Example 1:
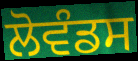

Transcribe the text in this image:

ਲੋਵੰਡਸ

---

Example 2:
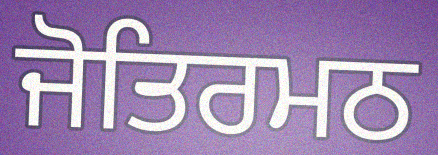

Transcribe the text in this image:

ਜੋਤਿਰਮਠ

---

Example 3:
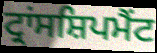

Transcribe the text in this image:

ਟ੍ਰਾਂਸਸ਼ਿਪਮੈਂਟ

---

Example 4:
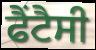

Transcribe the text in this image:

ਫੈਂਟੈਸੀ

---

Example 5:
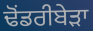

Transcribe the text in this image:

ਢੋਂਡਰੀਬੇੜਾ